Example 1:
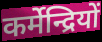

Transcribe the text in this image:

कर्मेन्द्रियों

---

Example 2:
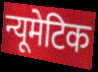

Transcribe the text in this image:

न्यूमेटिक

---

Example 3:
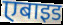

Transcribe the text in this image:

एबाइड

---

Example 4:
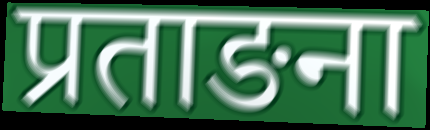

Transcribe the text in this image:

प्रताङना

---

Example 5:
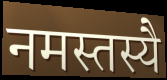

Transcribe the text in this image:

नमस्तस्यै